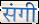
संगी